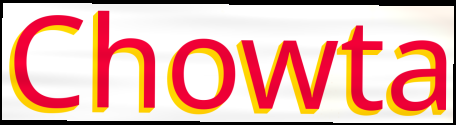
Chowta